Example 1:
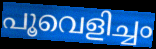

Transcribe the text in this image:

പൂവെളിച്ചം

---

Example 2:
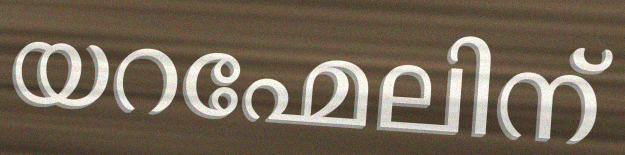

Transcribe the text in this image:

യറഹ്മേലിന്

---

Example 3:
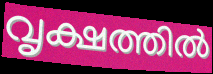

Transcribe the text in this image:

വൃക്ഷത്തിൽ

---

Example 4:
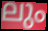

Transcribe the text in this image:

ലും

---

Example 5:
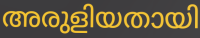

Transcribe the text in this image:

അരുളിയതായി